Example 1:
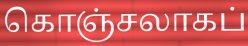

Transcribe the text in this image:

கொஞ்சலாகப்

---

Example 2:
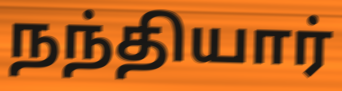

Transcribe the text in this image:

நந்தியார்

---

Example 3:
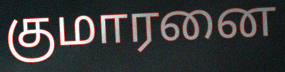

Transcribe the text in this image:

குமாரனை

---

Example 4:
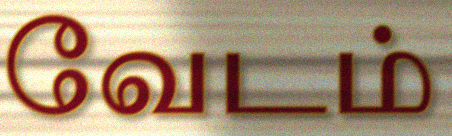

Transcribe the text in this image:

வேடம்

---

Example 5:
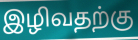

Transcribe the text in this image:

இழிவதற்கு